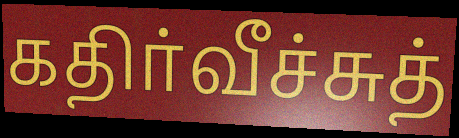
கதிர்வீச்சுத்